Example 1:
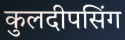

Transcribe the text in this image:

कुलदीपसिंग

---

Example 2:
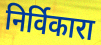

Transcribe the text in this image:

निर्विकारा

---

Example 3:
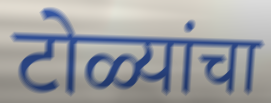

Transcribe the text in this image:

टोळ्यांचा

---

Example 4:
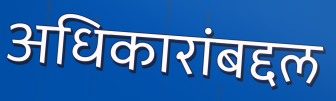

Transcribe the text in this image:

अधिकारांबद्दल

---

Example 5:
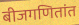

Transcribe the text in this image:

बीजगणितांत